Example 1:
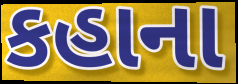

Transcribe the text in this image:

કહાના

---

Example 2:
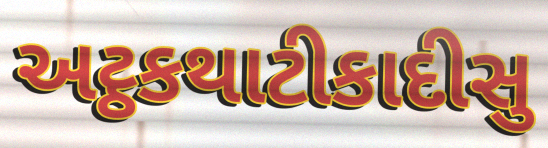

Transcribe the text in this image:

અટ્ઠકથાટીકાદીસુ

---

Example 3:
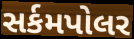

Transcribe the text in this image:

સર્કમપોલર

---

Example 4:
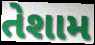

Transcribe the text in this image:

તેશામ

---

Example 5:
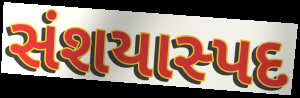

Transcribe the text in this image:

સંશયાસ્પદ